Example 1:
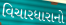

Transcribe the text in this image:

વિચારધારાનો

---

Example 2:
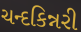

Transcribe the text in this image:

ચન્દકિન્નરી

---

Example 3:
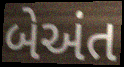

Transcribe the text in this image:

બેઅંત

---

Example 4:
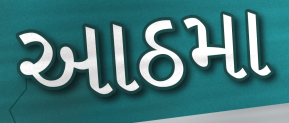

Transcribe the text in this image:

આઠમા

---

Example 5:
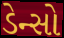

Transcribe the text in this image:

ડેન્સો